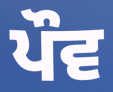
ਪੌਵ